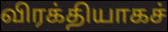
விரக்தியாகச்